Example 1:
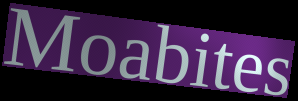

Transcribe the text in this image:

Moabites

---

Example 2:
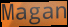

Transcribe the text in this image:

Magan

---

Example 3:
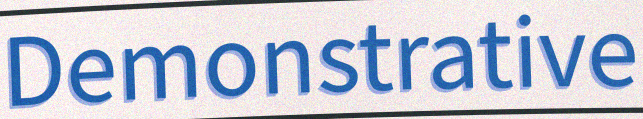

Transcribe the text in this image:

Demonstrative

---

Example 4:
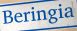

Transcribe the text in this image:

Beringia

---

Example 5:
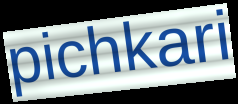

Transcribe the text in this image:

pichkari